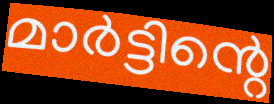
മാർട്ടിന്റെ